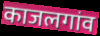
काजलगांव